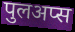
पुलअप्स